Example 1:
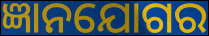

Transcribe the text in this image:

ଜ୍ଞାନଯୋଗର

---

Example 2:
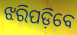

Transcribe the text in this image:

ଝରିପଡ଼ିବେ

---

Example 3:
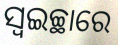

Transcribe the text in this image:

ସ୍ଵଇଚ୍ଛାରେ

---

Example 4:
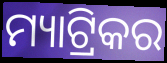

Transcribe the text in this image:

ମ୍ୟାଟ୍ରିକର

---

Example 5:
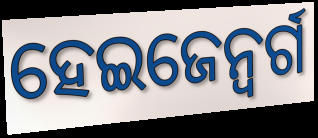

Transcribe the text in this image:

ହେଇଜେନ୍ବର୍ଗ